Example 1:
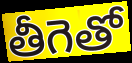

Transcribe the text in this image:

తీగెతో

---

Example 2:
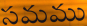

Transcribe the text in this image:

సమము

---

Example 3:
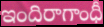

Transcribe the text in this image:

ఇందిరాగాంధీ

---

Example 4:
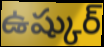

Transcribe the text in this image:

ఉష్కుర్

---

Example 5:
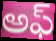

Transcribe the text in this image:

అఫ్